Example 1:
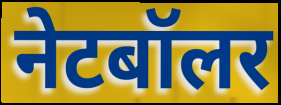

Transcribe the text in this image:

नेटबॉलर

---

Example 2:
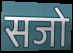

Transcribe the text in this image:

सजो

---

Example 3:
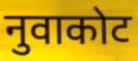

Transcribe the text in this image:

नुवाकोट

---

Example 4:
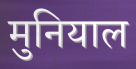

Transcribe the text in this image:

मुनियाल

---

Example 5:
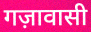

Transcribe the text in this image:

गज़ावासी